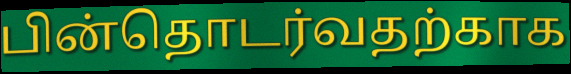
பின்தொடர்வதற்காக